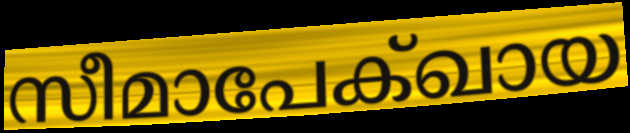
സീമാപേക്ഖായ